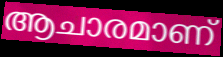
ആചാരമാണ്